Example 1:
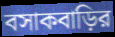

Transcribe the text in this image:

বসাকবাড়ির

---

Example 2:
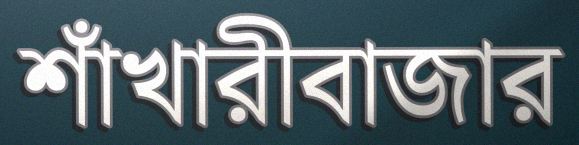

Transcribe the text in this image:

শাঁখারীবাজার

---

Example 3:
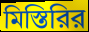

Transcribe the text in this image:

মিস্তিরির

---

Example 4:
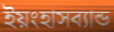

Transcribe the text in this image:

ইয়ংহাসব্যান্ড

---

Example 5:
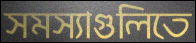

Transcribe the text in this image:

সমস্যাগুলিতে